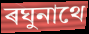
ৰঘুনাথে